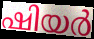
ഷിയർ